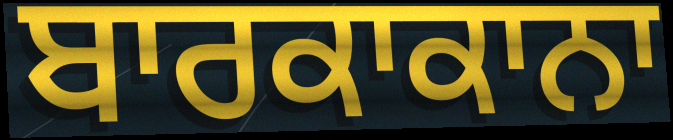
ਬਾਰਕਾਕਾਨਾ